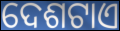
ଦେଶଟାଏ